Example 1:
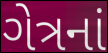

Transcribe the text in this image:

ગેત્રનાં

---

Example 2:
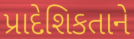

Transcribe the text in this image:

પ્રાદેશિકતાને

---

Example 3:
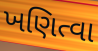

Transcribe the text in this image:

ખણિત્વા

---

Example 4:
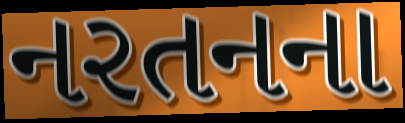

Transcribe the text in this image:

નરતનના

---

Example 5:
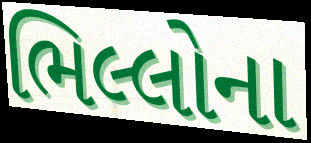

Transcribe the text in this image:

ભિલ્લોના